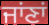
ਜਾਂਣਾਂ